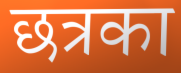
छत्रका